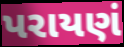
પરાયણં